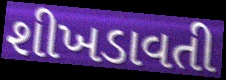
શીખડાવતી